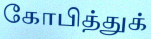
கோபித்துக்